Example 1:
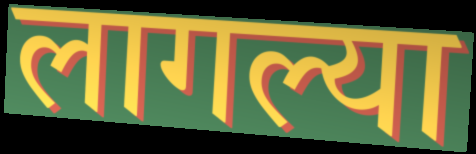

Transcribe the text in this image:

लागल्‍या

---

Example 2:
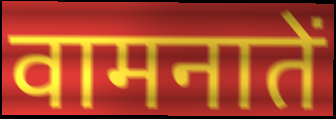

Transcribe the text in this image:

वामनातें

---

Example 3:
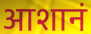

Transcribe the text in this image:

आशानं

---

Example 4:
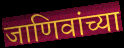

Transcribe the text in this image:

जाणिवांच्या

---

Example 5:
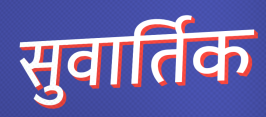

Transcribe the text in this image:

सुवार्तिक